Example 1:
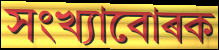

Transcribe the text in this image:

সংখ্যাবোৰক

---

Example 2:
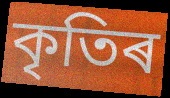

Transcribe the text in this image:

কৃতিৰ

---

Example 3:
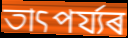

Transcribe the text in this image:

তাৎপৰ্য্যৰ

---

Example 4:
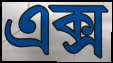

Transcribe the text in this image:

এক্স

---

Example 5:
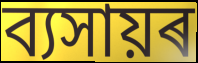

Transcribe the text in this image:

ব্যসায়ৰ